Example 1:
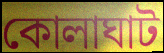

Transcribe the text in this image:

কোলাঘাট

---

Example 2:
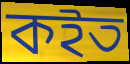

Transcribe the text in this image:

কইত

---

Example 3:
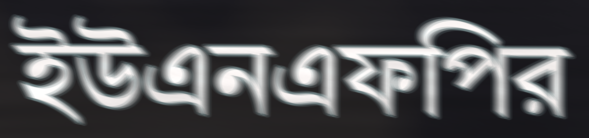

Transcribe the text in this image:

ইউএনএফপির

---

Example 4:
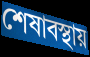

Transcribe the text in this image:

শেষাবস্থায়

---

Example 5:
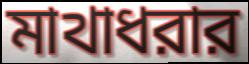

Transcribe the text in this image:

মাথাধরার